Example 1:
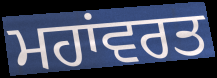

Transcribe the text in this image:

ਮਹਾਂਵਰਤ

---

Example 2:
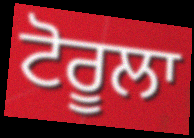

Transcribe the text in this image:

ਟੋਰੂਲਾ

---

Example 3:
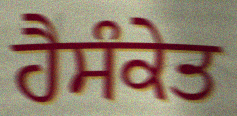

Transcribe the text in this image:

ਹੈਸੰਕੇਤ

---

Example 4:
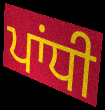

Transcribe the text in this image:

ਪਾਂਧੀ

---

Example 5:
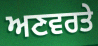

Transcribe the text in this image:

ਅਣਵਰਤੇ